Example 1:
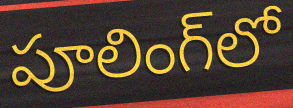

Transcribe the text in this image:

పూలింగ్‌లో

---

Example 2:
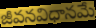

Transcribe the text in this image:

జీవనవిధానమే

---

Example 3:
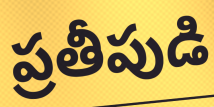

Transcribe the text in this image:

ప్రతీపుడి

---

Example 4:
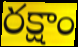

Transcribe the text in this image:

రక్షాం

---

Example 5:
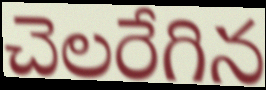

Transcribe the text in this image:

చెలరేగిన